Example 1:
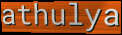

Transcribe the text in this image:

athulya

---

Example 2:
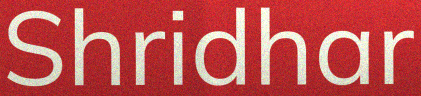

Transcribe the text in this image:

Shridhar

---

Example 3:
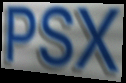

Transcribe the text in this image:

PSX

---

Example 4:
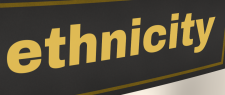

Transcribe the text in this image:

ethnicity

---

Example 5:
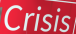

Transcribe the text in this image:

Crisis